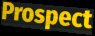
Prospect